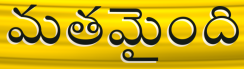
మతమైంది